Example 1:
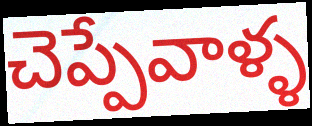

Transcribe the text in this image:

చెప్పేవాళ్ళ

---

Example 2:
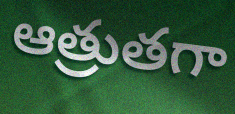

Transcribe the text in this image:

ఆత్రుతగా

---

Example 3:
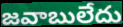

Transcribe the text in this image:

జవాబులేదు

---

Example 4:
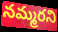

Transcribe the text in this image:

నమ్మరని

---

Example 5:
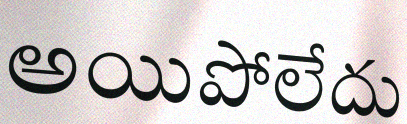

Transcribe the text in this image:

అయిపోలేదు